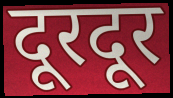
दूरदूर